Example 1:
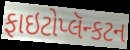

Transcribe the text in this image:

ફાઇટોપ્લૅન્કટન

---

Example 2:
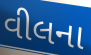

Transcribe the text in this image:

વીલના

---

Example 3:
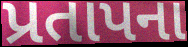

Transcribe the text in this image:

પ્રતાપના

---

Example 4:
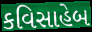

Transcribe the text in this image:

કવિસાહેબ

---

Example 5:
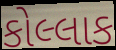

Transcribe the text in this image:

કોલ્લાક